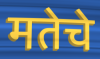
मतेचे